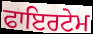
ਫਾਇਰਟੇਮ